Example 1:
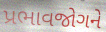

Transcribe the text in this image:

પ્રભાવજોગને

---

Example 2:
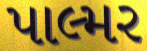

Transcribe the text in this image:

પાલ્મર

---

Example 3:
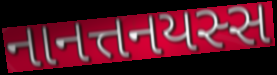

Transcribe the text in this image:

નાનત્તનયસ્સ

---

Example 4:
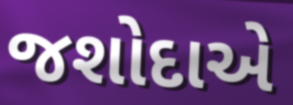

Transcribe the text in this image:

જશોદાએ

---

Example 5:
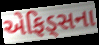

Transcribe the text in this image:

એફિડ્સના